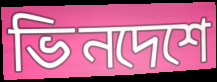
ভিনদেশে